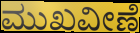
ಮುಖವೀಣೆ